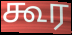
கூர